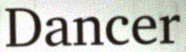
Dancer